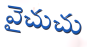
వైచుచు